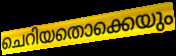
ചെറിയതൊക്കെയും